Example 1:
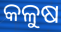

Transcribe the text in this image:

କଳୁଷ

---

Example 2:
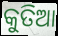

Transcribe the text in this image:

କୁତିଆ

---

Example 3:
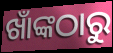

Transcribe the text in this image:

ଖାଁଙ୍କଠାରୁ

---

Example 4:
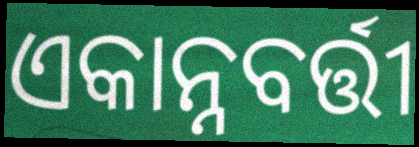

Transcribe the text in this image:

ଏକାନ୍ନବର୍ତ୍ତୀ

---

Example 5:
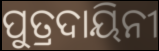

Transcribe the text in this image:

ପୁତ୍ରଦାୟିନୀ